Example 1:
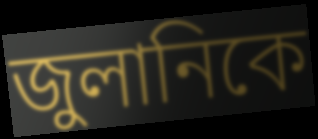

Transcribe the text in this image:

জুলানিকে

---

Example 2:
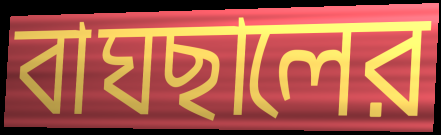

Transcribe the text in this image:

বাঘছালের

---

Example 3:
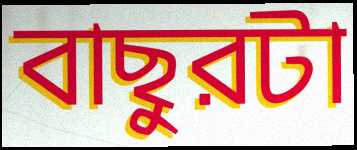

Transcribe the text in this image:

বাছুরটা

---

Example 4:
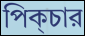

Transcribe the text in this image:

পিক্চার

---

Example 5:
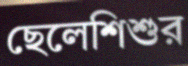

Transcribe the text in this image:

ছেলেশিশুর